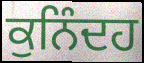
ਕੁਨਿੰਦਹ